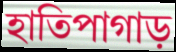
হাতিপাগাড়